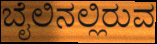
ಬೈಲಿನಲ್ಲಿರುವ